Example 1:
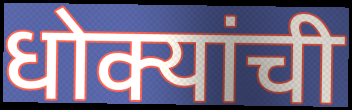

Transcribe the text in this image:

धोक्यांची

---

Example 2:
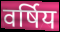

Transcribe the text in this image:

वर्षिय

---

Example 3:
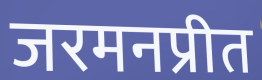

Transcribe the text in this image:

जरमनप्रीत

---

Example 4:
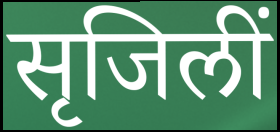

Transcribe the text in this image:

सृजिलीं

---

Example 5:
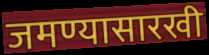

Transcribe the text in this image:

जमण्यासारखी